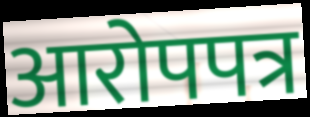
आरोपपत्र